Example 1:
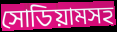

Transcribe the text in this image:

সোডিয়ামসহ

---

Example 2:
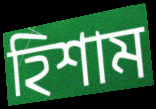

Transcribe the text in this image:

হিশাম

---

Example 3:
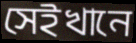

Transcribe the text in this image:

সেইখানে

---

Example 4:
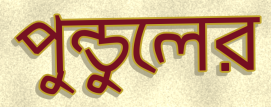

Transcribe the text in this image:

পুন্ডুলের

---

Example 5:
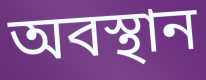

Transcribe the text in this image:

অবস্থান